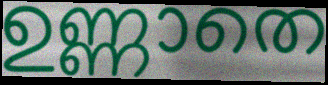
ഉണ്ണാതെ